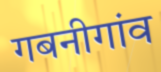
गबनीगांव